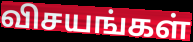
விசயங்கள்